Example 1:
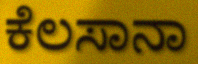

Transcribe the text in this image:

ಕೆಲಸಾನಾ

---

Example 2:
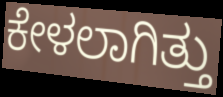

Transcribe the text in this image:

ಕೇಳಲಾಗಿತ್ತು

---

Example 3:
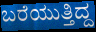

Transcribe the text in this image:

ಬರೆಯುತ್ತಿದ್ದ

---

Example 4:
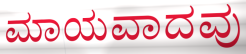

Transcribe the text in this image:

ಮಾಯವಾದವು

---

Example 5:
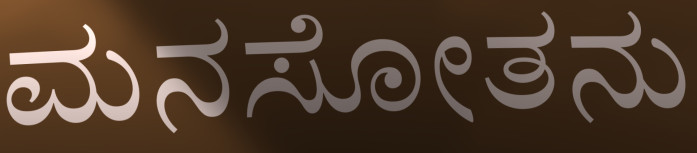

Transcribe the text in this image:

ಮನಸೋತನು